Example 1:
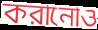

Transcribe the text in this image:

করানোও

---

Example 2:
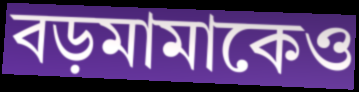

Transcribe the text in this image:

বড়মামাকেও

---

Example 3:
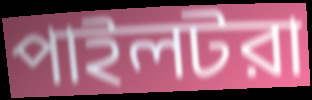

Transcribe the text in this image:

পাইলটরা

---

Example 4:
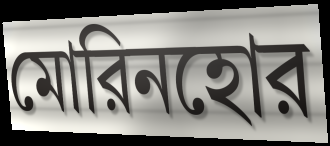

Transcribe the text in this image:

মোরিনহোর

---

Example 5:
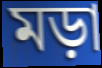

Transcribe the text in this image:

মড়া